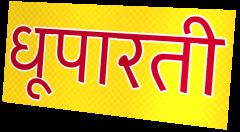
धूपारती